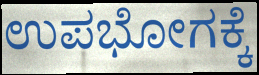
ಉಪಭೋಗಕ್ಕೆ